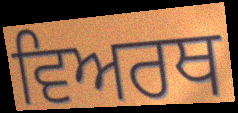
ਵਿਅਰਥ